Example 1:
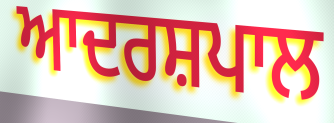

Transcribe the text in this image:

ਆਦਰਸ਼ਪਾਲ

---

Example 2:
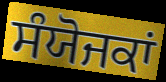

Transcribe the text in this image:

ਸੰਯੋਜਕਾਂ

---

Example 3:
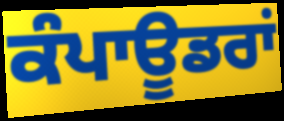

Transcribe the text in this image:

ਕੰਪਾਊਡਰਾਂ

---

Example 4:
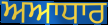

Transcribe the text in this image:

ਅਆਧਾਰ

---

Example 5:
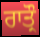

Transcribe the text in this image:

ਰਾਤ੍ਰੌ